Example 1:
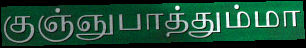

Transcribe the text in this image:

குஞ்ஞுபாத்தும்மா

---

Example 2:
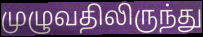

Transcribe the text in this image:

முழுவதிலிருந்து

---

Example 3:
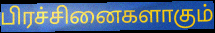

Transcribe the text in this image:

பிரச்சினைகளாகும்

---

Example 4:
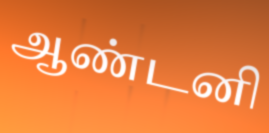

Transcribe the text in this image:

ஆண்டனி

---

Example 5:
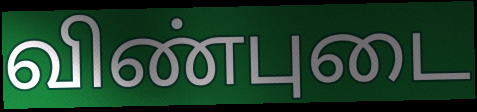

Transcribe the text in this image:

விண்புடை